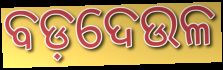
ବଡ଼ଦେଉଳ